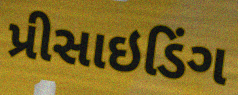
પ્રીસાઇડિંગ